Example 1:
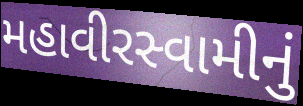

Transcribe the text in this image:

મહાવીરસ્વામીનું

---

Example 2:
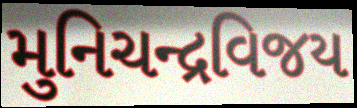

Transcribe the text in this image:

મુનિચન્દ્રવિજય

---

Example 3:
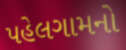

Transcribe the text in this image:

પહેલગામનો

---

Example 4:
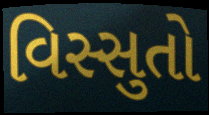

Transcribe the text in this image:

વિસ્સુતો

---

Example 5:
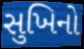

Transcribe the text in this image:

સુખિનો